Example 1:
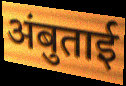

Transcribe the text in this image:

अंबुताई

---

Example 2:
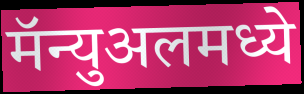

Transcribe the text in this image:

मॅन्युअलमध्ये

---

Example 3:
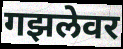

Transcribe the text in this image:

गझलेवर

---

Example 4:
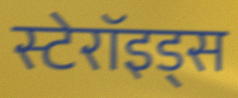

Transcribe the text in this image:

स्टेरॉइड्स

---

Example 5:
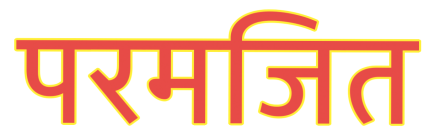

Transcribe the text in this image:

परमजित